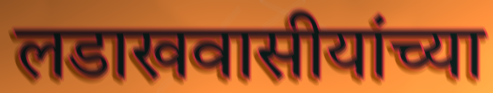
लडाखवासीयांच्या